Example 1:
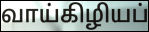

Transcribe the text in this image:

வாய்கிழியப்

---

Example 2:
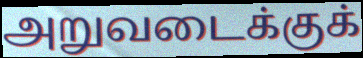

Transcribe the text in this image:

அறுவடைக்குக்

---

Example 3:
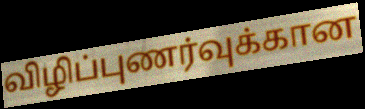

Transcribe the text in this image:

விழிப்புணர்வுக்கான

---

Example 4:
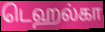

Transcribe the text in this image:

டெஹல்கா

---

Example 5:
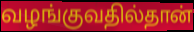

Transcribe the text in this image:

வழங்குவதில்தான்